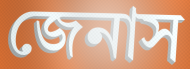
জেনাস